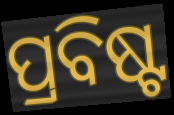
ପ୍ରବିଷ୍ଟ